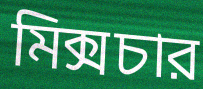
মিক্সচার